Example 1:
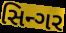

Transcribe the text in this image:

સિન્ગર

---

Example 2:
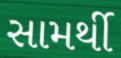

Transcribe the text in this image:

સામર્થી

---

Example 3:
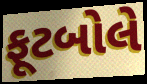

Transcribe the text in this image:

ફૂટબોલે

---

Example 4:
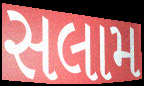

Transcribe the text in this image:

સલામ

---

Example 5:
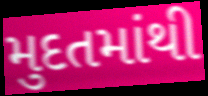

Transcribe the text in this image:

મુદતમાંથી